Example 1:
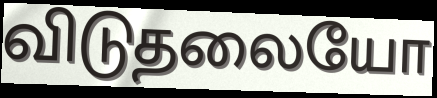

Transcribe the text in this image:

விடுதலையோ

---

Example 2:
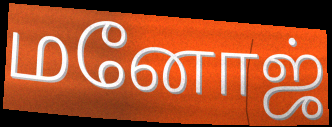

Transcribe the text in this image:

மனோஜ்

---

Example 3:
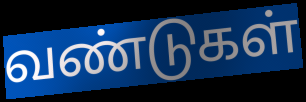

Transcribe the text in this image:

வண்டுகள்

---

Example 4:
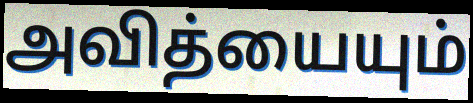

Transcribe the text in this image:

அவித்யையும்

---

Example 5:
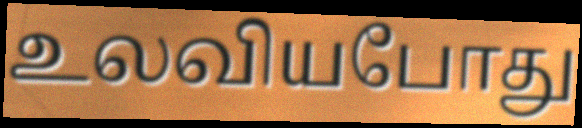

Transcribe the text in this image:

உலவியபோது